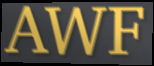
AWF